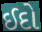
ઈદો